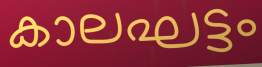
കാലഘട്ടം